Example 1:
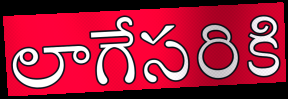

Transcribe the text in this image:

లాగేసరికి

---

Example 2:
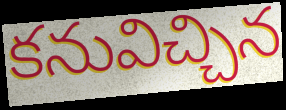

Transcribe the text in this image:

కనువిచ్చిన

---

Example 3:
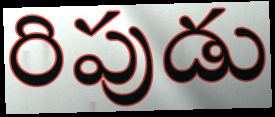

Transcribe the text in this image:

రిపుడు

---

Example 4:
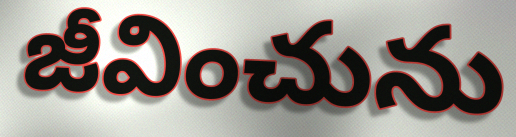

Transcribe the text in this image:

జీవించును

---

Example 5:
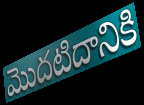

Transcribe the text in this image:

మొదటిదానికి